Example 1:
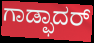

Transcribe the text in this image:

ಗಾಡ್ಫಾದರ್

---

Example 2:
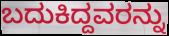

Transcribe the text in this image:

ಬದುಕಿದ್ದವರನ್ನು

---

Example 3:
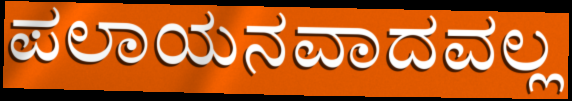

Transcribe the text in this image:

ಪಲಾಯನವಾದವಲ್ಲ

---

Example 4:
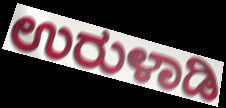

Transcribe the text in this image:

ಉರುಳಾಡಿ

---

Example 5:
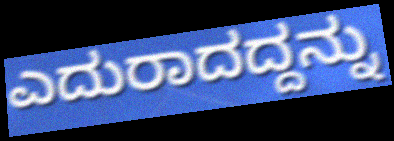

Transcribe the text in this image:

ಎದುರಾದದ್ದನ್ನು